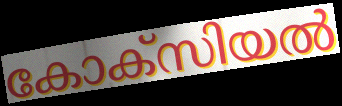
കോക്സിയൽ